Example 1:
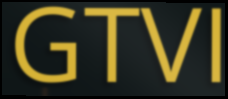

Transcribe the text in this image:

GTVI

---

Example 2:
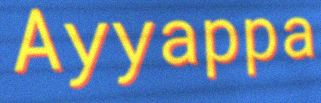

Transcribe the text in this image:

Ayyappa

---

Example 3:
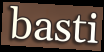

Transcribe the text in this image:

basti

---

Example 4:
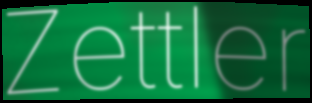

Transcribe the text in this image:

Zettler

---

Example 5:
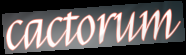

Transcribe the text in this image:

cactorum